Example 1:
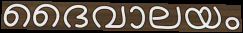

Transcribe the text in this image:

ദൈവാലയം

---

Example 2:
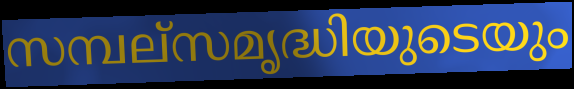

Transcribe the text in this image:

സമ്പല്സമൃദ്ധിയുടെയും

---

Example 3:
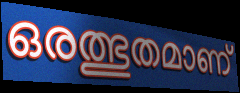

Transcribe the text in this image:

ഒരത്ഭുതമാണ്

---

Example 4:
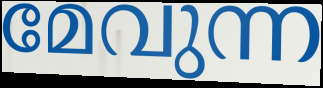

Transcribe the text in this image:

മേവുന്ന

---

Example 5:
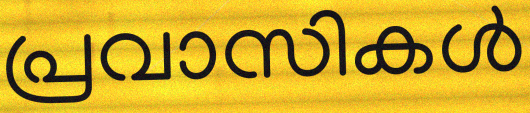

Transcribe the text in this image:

പ്രവാസികൾ